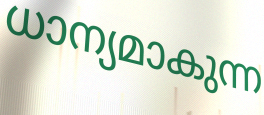
ധാന്യമാകുന്ന